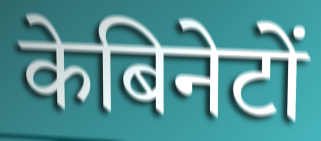
केबिनेटों